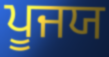
ਪੂਜਯ